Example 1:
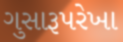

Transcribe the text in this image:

ગુસારૂપરેખા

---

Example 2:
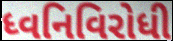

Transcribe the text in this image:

ધ્વનિવિરોધી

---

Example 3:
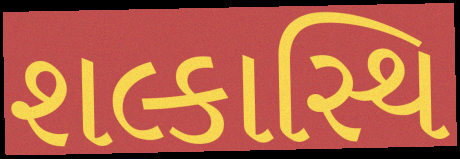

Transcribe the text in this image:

શલ્કાસ્થિ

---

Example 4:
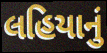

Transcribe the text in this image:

લહિયાનું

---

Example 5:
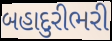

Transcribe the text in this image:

બહાદુરીભરી